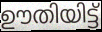
ഊതിയിട്ട്